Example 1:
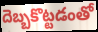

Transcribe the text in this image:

దెబ్బకొట్టడంతో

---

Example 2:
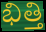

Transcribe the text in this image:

భిత్తి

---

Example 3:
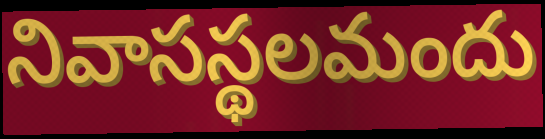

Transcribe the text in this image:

నివాసస్థలమందు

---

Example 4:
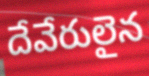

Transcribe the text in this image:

దేవేరులైన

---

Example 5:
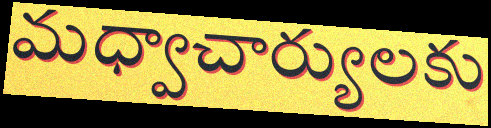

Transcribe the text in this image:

మధ్వాచార్యులకు